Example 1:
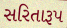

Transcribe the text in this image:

સરિતારૂપ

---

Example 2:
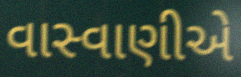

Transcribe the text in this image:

વાસ્વાણીએ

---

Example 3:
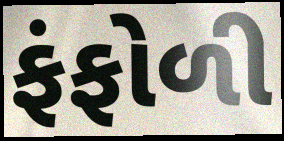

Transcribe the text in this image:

ફંફોળી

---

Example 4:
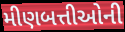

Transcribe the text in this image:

મીણબત્તીઓની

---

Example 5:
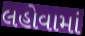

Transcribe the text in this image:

લહોવામાં